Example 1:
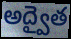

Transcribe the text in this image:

అద్వైత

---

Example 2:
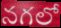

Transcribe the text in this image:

నగలో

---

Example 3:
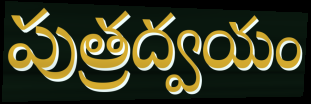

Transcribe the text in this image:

పుత్రద్వయం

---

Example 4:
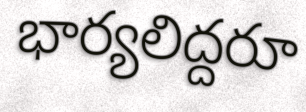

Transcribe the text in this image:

భార్యలిద్దరూ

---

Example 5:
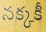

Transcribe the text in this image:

నక్కకీ